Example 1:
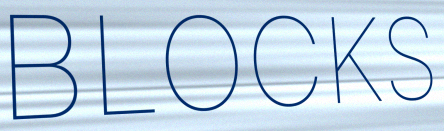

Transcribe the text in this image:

BLOCKS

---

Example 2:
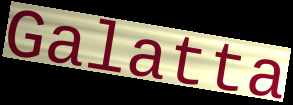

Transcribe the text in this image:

Galatta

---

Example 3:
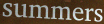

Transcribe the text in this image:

summers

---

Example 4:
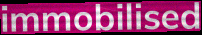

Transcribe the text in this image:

immobilised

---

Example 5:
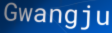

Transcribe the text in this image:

Gwangju